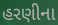
હરણીના